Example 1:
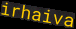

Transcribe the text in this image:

irhaiva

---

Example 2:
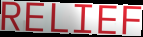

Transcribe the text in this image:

RELIEF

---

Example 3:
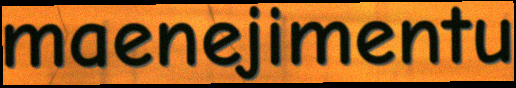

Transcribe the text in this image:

maenejimentu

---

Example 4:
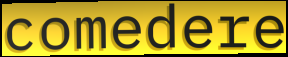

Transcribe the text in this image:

comedere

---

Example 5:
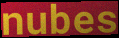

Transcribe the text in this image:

nubes